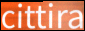
cittira